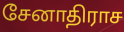
சேனாதிராச